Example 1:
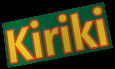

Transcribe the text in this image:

Kiriki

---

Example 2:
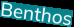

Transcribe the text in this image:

Benthos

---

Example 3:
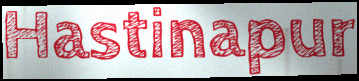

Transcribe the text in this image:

Hastinapur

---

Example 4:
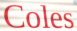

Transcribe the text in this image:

Coles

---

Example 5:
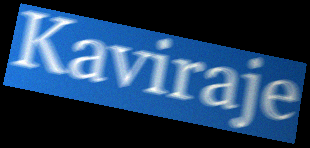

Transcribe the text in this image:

Kaviraje